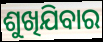
ଶୁଖିଯିବାର